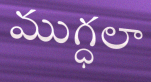
ముగ్ధలా